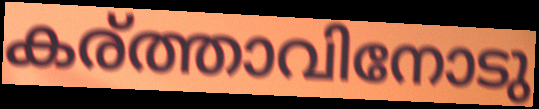
കര്ത്താവിനോടു